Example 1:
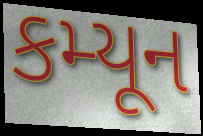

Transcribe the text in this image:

કમ્યૂન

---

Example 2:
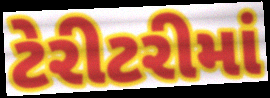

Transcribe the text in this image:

ટેરીટરીમાં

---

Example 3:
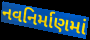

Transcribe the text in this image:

નવનિર્માણમાં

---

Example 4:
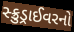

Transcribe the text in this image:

સ્ક્રુડ્રાઈવરનો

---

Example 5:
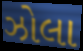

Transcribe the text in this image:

ઝોલા